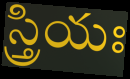
స్త్రియః